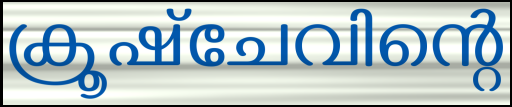
ക്രൂഷ്ചേവിന്റെ